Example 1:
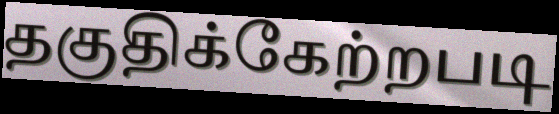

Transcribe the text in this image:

தகுதிக்கேற்றபடி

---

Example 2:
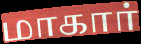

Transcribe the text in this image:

மாகார்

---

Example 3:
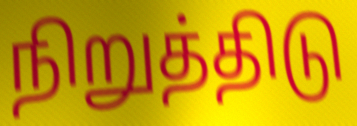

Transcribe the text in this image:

நிறுத்திடு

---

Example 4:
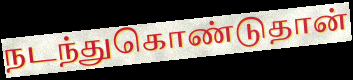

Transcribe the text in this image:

நடந்துகொண்டுதான்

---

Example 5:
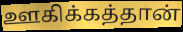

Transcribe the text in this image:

ஊகிக்கத்தான்